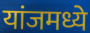
यांजमध्ये